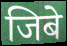
जिबे